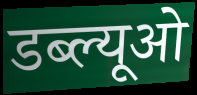
डब्ल्यूओ